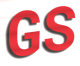
GS